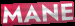
MANE